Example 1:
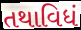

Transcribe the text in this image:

તથાવિધં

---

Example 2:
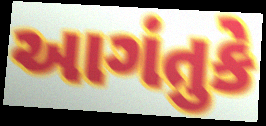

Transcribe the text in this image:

આગંતુકે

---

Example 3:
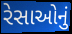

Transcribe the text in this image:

રેસાઓનું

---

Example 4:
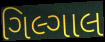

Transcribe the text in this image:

ગિલ્ગાલ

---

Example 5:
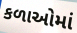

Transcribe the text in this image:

કળાઓમાં